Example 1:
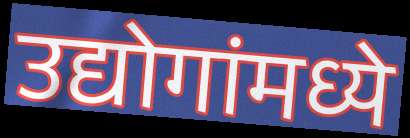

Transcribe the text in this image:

उद्योगांमध्ये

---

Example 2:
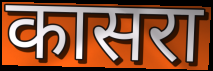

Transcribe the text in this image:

कासरा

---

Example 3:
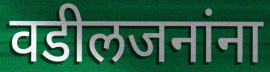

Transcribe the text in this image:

वडीलजनांना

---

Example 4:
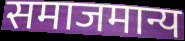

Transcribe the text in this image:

समाजमान्य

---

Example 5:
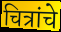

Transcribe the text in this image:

चित्रांचे